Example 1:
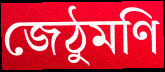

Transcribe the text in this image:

জেঠুমণি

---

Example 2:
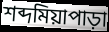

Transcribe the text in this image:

শব্দমিয়াপাড়া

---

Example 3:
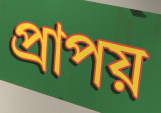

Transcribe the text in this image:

প্রাপয়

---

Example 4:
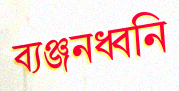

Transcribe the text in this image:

ব্যঞ্জনধ্বনি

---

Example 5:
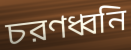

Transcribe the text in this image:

চরণধ্বনি